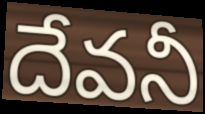
దేవనీ